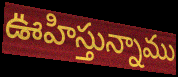
ఊహిస్తున్నాము